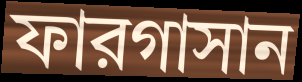
ফারগাসান